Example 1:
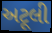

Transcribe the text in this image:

અટૂલી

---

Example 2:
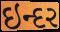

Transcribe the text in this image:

ઇન્દર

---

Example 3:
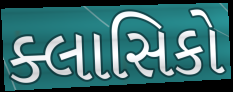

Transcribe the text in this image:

ક્લાસિકો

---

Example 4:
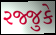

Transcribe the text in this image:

રજ્જુકે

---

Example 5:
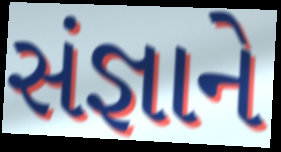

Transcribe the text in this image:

સંજ્ઞાને